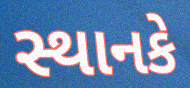
સ્થાનકે